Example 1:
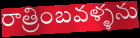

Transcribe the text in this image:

రాత్రింబవళ్ళను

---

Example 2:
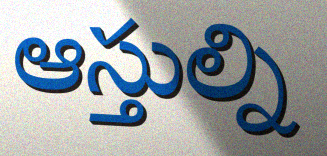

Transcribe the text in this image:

ఆస్తుల్ని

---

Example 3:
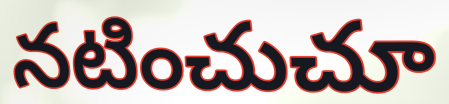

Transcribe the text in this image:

నటించుచూ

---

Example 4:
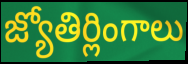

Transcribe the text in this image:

జ్యోతిర్లింగాలు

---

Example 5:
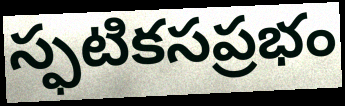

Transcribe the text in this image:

స్ఫటికసప్రభం